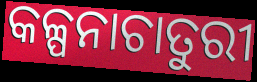
କଳ୍ପନାଚାତୁରୀ